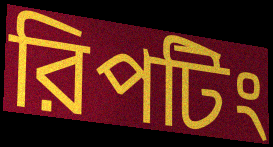
রিপটিং